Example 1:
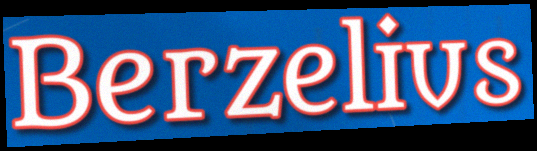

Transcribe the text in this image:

Berzelius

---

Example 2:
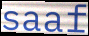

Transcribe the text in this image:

saaf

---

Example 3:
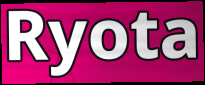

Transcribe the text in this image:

Ryota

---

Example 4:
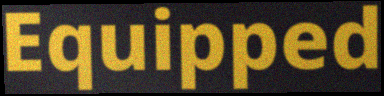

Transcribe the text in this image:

Equipped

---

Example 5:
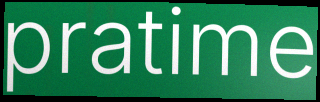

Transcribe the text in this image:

pratime